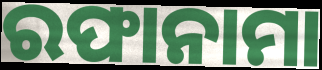
ରଫାନାମା